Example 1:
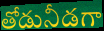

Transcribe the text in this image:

తోడునీడగా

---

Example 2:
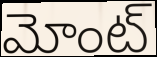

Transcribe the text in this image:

మోంట్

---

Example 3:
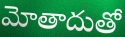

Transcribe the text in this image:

మోతాదుతో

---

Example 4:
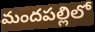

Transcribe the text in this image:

మందపల్లిలో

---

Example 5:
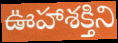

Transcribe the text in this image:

ఊహాశక్తిని